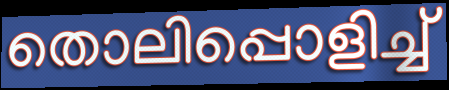
തൊലിപ്പൊളിച്ച്